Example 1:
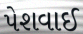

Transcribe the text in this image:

પેશવાઈ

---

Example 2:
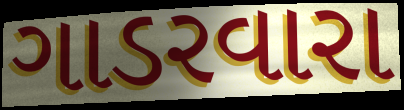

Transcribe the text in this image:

ગાડરવારા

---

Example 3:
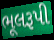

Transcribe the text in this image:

ભૂલરૂપી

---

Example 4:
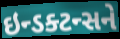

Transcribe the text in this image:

ઇન્ડક્ટન્સને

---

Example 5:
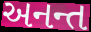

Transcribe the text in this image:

અનન્ત